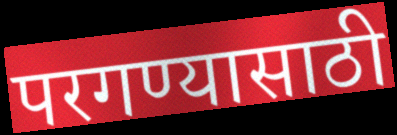
परगण्यासाठी